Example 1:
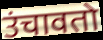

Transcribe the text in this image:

उंचावतो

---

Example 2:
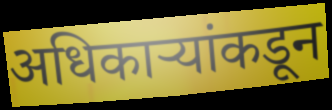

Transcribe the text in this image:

अधिकाऱ्यांकडून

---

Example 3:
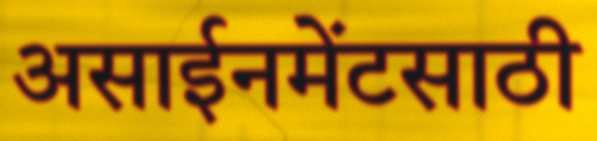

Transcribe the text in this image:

असाईनमेंटसाठी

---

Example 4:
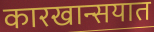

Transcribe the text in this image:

कारखान्सयात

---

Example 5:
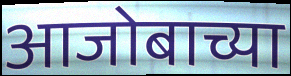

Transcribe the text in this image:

आजोबाच्या